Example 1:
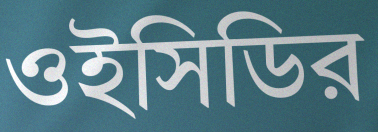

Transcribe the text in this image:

ওইসিডির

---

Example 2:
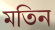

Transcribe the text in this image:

মতিন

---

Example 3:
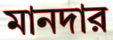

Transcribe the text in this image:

মানদার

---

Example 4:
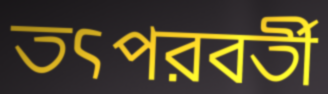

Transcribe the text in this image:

তৎপরবর্তী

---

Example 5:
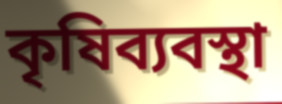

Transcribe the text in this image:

কৃষিব্যবস্থা